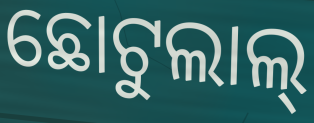
ଛୋଟୁଲାଲ୍